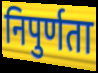
निपुर्णता